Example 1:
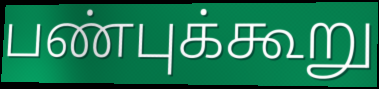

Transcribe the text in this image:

பண்புக்கூறு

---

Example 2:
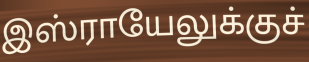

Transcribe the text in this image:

இஸ்ராயேலுக்குச்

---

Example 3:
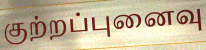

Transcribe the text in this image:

குற்றப்புனைவு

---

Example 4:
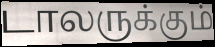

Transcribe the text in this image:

டாலருக்கும்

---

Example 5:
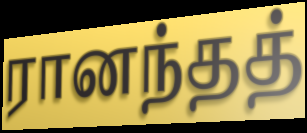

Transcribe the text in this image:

ரானந்தத்